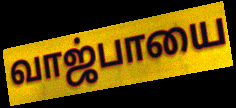
வாஜ்பாயை